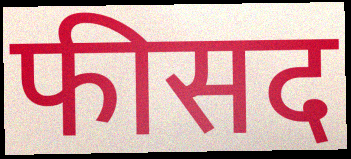
फीसद